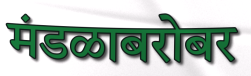
मंडळाबरोबर